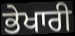
ਭੇਖਾਰੀ